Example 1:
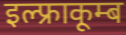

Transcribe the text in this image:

इल्फ्राकूम्ब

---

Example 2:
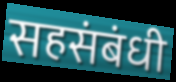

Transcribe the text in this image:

सहसंबंधी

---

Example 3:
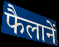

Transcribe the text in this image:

फैलानें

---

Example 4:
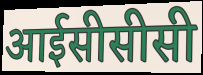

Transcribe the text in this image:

आईसीसीसी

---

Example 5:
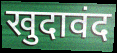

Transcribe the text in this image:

खुदावंद